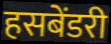
हसबेंडरी